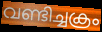
വണ്ടിച്ചക്രം